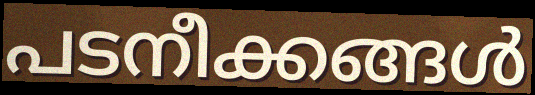
പടനീക്കങ്ങൾ